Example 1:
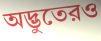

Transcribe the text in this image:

অদ্ভুতেরও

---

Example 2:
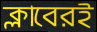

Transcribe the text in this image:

ক্লাবেরই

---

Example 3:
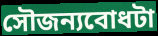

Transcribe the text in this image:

সৌজন্যবোধটা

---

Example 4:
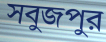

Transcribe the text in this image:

সবুজপুর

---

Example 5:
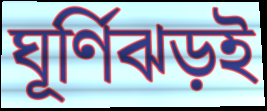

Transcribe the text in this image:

ঘূর্ণিঝড়ই